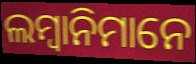
ଲମ୍ବାନିମାନେ